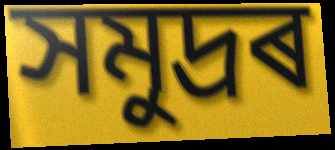
সমুদ্ৰৰ